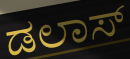
ಡಲಾಸ್